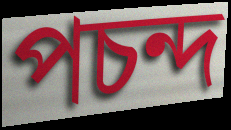
পচন্দ